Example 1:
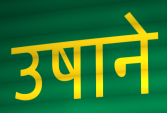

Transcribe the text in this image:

उषाने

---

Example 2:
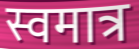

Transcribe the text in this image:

स्वमात्र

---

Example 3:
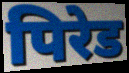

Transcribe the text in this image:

पिरेड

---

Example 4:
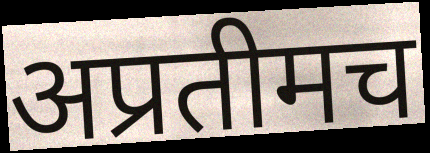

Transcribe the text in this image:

अप्रतीमच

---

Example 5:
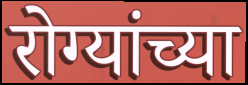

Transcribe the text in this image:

रोग्यांच्या